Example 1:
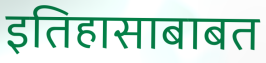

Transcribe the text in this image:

इतिहासाबाबत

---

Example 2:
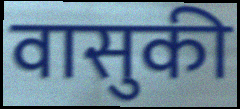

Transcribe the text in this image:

वासुकी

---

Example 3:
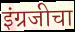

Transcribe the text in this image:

इंग्रजीचा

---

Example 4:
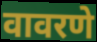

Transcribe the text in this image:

वावरणे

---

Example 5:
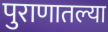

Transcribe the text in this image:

पुराणातल्या